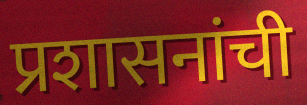
प्रशासनांची